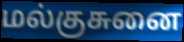
மல்குசுனை